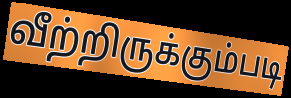
வீற்றிருக்கும்படி